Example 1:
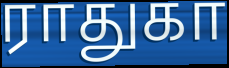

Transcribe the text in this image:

ராதுகா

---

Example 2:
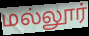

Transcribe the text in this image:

மல்லூர்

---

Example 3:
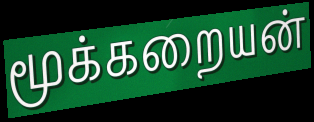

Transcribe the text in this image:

மூக்கறையன்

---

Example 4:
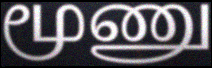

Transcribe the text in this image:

மூணு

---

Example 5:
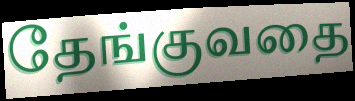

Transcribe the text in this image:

தேங்குவதை